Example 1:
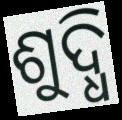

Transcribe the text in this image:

ଶୁଦ୍ଧି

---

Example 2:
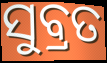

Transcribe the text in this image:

ସୁବ୍ରତ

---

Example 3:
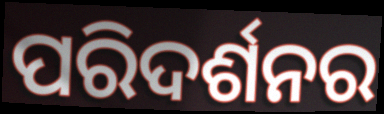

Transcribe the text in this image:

ପରିଦର୍ଶନର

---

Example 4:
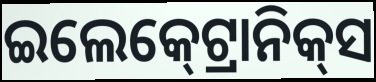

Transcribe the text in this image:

ଇଲେକ୍‍ଟ୍ରୋନିକ୍‍ସ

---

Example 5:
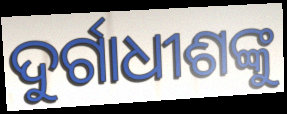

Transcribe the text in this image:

ଦୁର୍ଗାଧୀଶଙ୍କୁ